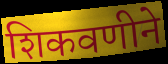
शिकवणीने